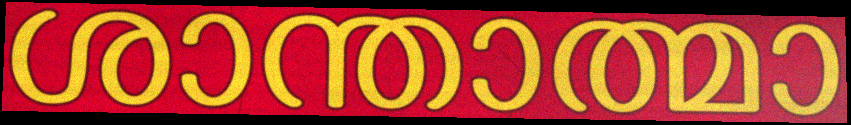
ശാന്താത്മാ